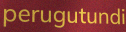
perugutundi